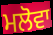
ਮਲੋਵਾ